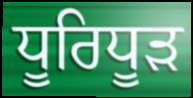
ਧੂਰਿਧੂੜ